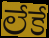
లేకే